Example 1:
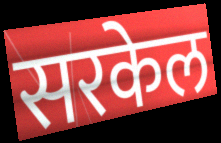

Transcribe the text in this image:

सरकेल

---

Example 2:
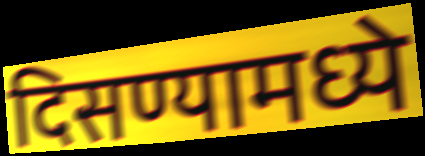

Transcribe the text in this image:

दिसण्यामध्ये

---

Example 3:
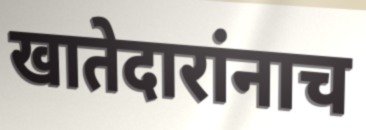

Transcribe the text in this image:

खातेदारांनाच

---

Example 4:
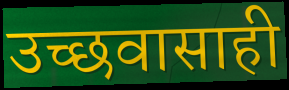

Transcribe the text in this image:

उच्छवासाही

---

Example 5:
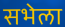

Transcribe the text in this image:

सभेला